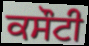
ਕਸੌਟੀ